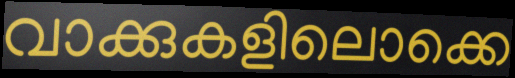
വാക്കുകളിലൊക്കെ